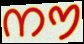
നൗ